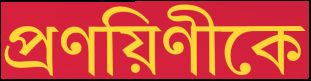
প্রণয়িণীকে